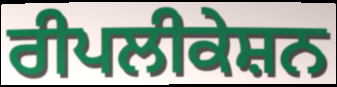
ਰੀਪਲੀਕੇਸ਼ਨ